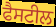
ਫੈਸਟੀਲ